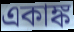
একাঙ্ক